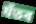
যঁতৰ